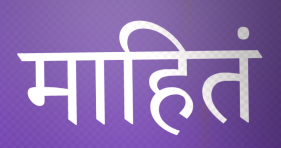
माहितं